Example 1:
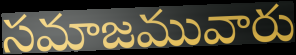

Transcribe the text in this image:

సమాజమువారు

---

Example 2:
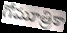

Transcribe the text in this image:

గోమూత్రికా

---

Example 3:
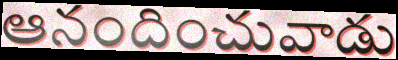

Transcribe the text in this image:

ఆనందించువాడు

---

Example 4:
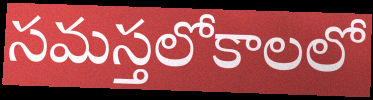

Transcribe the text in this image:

సమస్తలోకాలలో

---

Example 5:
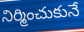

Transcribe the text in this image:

నిర్మించుకునే